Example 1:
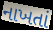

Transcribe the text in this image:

નાખતાં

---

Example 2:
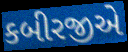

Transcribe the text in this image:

કબીરજીએ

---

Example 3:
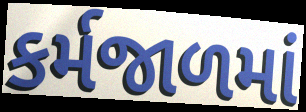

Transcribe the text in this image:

કર્મજાળમાં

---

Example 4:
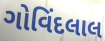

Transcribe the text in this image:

ગોવિંદલાલ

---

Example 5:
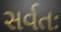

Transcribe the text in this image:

સર્વતઃ